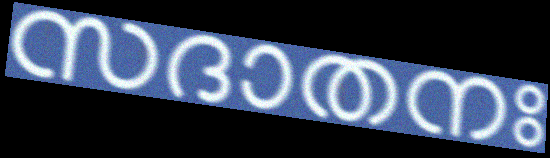
സദാതനഃ